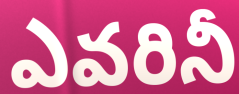
ఎవరినీ